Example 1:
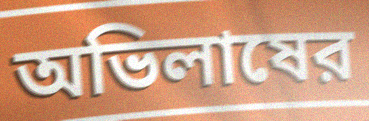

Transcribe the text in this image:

অভিলাষের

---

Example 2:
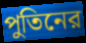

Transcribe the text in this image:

পুতিনের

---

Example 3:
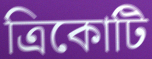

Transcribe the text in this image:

ত্রিকোটি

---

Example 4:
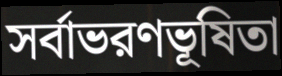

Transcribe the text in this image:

সর্বাভরণভূষিতা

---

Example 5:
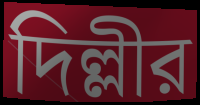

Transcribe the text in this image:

দিল্লীর